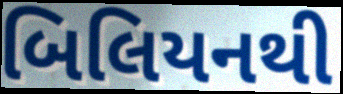
બિલિયનથી